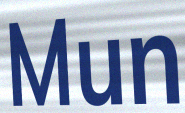
Mun